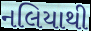
નલિયાથી